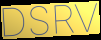
DSRV